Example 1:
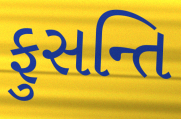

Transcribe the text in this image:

ફુસન્તિ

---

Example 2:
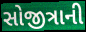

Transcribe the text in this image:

સોજીત્રાની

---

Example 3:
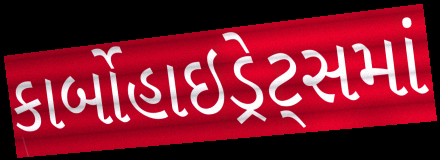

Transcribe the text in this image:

કાર્બોહાઇડ્રેટ્સમાં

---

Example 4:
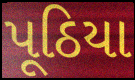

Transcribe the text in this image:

પૂઠિયા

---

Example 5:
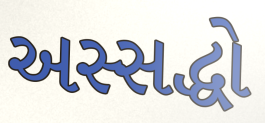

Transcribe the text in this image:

અસ્સદ્ધો